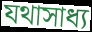
যথাসাধ্য